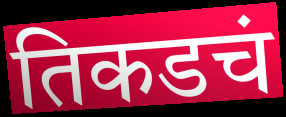
तिकडचं